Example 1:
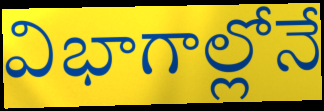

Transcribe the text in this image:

విభాగాల్లోనే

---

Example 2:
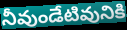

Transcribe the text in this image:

నీవుండేటివునికి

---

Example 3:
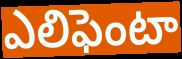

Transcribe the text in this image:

ఎలిఫెంటా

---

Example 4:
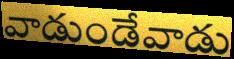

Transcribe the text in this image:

వాడుండేవాడు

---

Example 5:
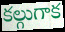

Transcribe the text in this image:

కల్గుగాక